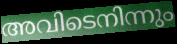
അവിടെനിന്നും